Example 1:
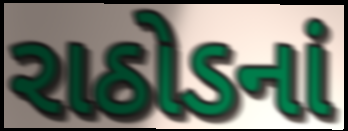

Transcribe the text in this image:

રાઠોડનાં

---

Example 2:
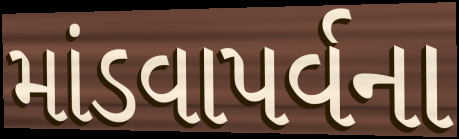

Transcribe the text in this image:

માંડવાપર્વના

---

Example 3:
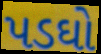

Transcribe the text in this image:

પડઘો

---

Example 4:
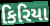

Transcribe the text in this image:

કિરિયા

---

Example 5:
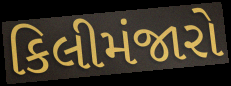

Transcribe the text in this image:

કિલીમંજારો